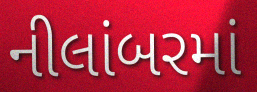
નીલાંબરમાં